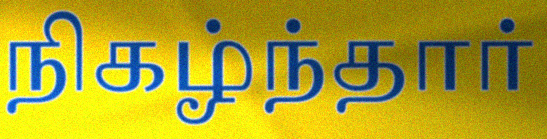
நிகழ்ந்தார்